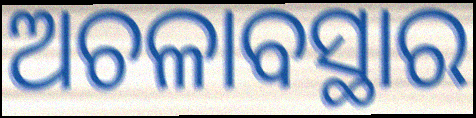
ଅଚଳାବସ୍ଥାର